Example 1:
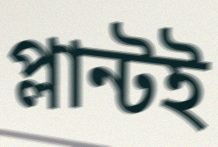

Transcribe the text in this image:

প্লান্টই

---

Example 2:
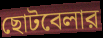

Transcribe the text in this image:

ছোটবেলার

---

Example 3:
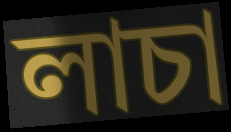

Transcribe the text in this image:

লাচা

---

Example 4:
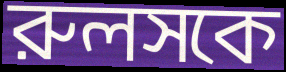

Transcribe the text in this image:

রুলসকে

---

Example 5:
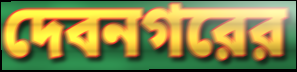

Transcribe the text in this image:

দেবনগরের